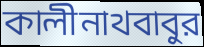
কালীনাথবাবুর